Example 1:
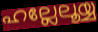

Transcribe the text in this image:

ഹല്ലേലൂയ്യ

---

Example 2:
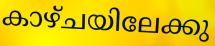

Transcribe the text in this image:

കാഴ്ചയിലേക്കു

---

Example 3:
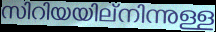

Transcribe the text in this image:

സിറിയയില്നിന്നുള്ള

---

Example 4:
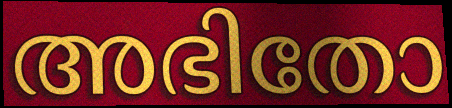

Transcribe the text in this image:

അഭിതോ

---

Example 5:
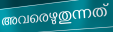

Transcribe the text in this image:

അവരെഴുതുന്നത്